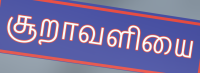
சூறாவளியை